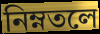
নিম্নতলে